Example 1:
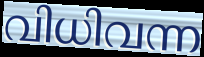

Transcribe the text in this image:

വിധിവന്ന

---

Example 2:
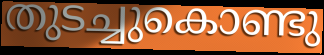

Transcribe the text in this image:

തുടച്ചുകൊണ്ടു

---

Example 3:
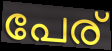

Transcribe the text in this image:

പേര്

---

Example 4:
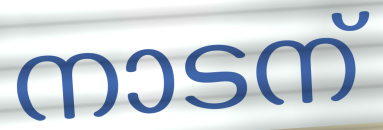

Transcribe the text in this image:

നാടന്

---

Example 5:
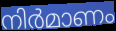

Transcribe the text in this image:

നിർമാണം